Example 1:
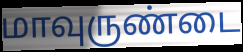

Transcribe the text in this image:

மாவுருண்டை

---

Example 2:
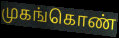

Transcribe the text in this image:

முகங்கொண்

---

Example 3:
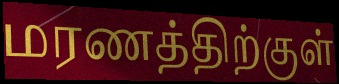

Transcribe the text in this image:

மரணத்திற்குள்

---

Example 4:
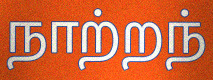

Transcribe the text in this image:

நாற்றந்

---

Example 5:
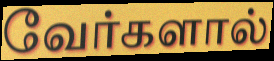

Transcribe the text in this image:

வேர்களால்